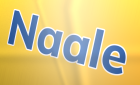
Naale